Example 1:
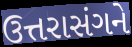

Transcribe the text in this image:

ઉત્તરાસંગને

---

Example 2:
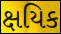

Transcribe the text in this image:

ક્ષયિક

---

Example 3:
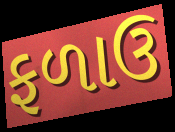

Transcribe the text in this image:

ફળાઉ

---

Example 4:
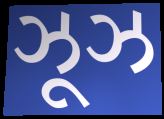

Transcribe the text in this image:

ઝૂઝ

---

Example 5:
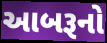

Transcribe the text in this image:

આબરૂનો